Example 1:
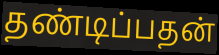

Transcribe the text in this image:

தண்டிப்பதன்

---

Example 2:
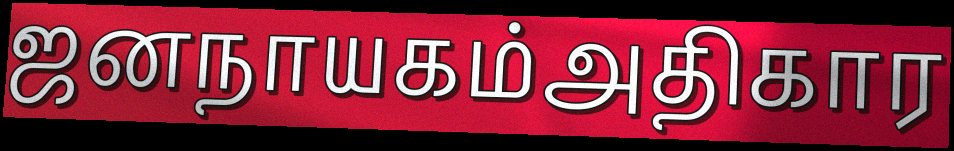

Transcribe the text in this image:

ஜனநாயகம்அதிகார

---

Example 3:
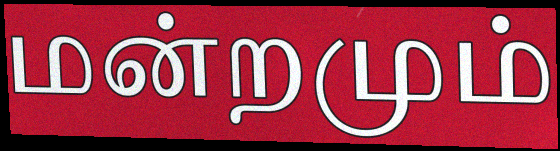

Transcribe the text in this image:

மன்றமும்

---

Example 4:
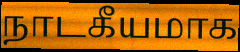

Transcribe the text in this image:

நாடகீயமாக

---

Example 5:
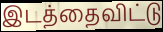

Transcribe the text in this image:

இடத்தைவிட்டு